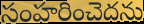
సంహరించెదను